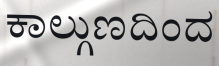
ಕಾಲ್ಗುಣದಿಂದ